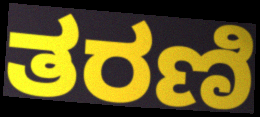
ತರಣಿ